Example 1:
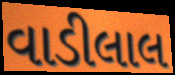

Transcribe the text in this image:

વાડીલાલ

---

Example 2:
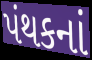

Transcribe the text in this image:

પંથકનાં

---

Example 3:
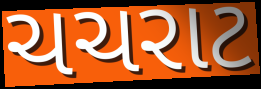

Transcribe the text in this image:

ચચરાટ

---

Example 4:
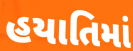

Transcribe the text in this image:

હયાતિમાં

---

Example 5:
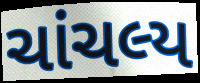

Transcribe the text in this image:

ચાંચલ્ય